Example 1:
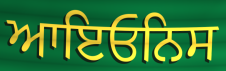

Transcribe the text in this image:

ਆਇਓਨਿਸ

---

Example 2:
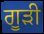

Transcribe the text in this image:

ਗੂੜੀ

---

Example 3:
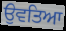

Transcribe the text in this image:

ਉਵਤਿਆ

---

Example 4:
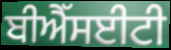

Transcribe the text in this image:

ਬੀਐੱਸਈਟੀ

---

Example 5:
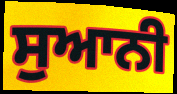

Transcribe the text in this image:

ਸੁਆਨੀ